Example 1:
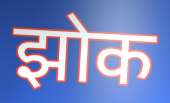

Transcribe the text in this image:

झोक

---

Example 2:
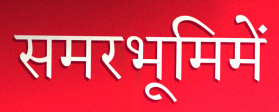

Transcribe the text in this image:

समरभूमिमें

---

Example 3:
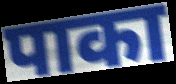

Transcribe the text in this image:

पाका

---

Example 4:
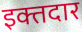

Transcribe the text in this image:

इक्तदार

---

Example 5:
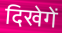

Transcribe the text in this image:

दिखेगें